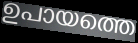
ഉപായത്തെ